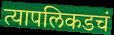
त्यापलिकडचं